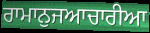
ਰਾਮਾਨੁਜਆਚਾਰੀਆ